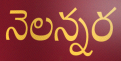
నెలన్నర